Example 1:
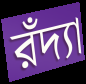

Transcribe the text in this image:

রঁদ্যা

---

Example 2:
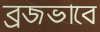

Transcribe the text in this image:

ব্রজভাবে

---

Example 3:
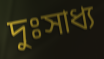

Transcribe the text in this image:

দুঃসাধ্য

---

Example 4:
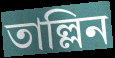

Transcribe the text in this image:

তাল্লিন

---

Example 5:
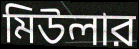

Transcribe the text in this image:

মিউলার